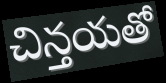
చిన్తయతో